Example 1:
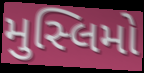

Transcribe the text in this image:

મુસ્લિમો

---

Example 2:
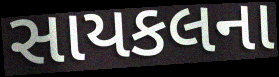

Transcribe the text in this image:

સાયકલના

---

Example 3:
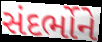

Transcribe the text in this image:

સંદર્ભોને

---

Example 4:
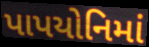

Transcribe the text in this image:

પાપયોનિમાં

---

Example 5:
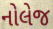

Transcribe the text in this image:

નોલેજ